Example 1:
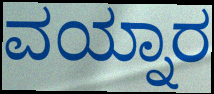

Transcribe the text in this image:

ವಯ್ನಾರ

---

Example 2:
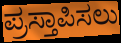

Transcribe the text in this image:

ಪ್ರಸ್ತಾಪಿಸಲು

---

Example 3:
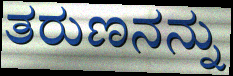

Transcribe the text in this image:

ತರುಣನನ್ನು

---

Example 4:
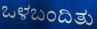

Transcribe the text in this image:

ಒಳಬಂದಿತು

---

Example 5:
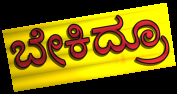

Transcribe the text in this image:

ಬೇಕಿದ್ರೂ